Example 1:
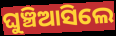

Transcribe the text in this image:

ଘୁଞ୍ଚିଆସିଲେ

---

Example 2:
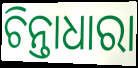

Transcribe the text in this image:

ଚିନ୍ତାଧାରା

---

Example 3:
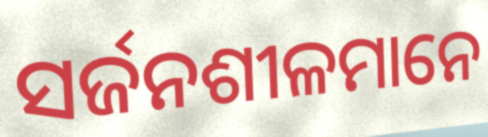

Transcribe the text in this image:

ସର୍ଜନଶୀଳମାନେ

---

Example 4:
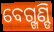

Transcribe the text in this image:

ବେଗ୍ଖଣ୍ଡି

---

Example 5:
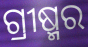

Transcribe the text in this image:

ଗ୍ରୀଷ୍ମର